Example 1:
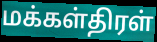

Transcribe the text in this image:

மக்கள்திரள்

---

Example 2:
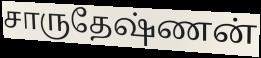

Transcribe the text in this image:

சாருதேஷ்ணன்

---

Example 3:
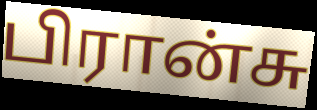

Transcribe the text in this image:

பிரான்சு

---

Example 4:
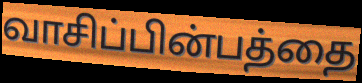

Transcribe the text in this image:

வாசிப்பின்பத்தை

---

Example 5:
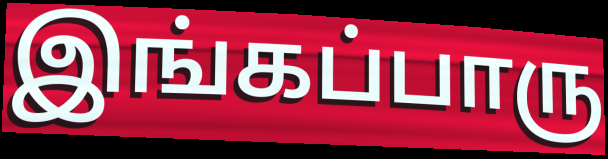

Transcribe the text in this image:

இங்கப்பாரு